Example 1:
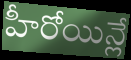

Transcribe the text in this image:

హీరోయిన్లే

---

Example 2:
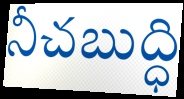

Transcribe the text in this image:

నీచబుద్ధి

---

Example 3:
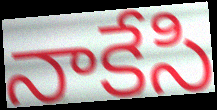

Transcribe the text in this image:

నాకేసి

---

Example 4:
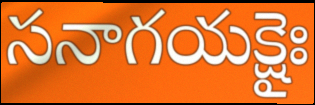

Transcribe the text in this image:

సనాగయక్షైః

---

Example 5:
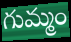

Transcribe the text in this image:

గుమ్మం